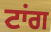
ਟਾਂਗ